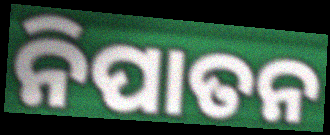
ନିପାତନ